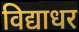
विद्याधर